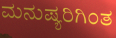
ಮನುಷ್ಯರಿಗಿಂತ